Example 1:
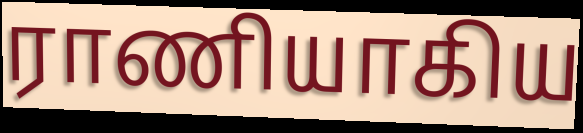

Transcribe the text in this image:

ராணியாகிய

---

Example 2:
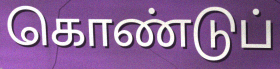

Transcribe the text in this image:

கொண்டுப்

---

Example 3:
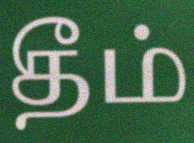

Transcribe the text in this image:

தீம்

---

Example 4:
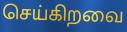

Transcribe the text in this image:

செய்கிறவை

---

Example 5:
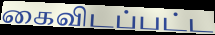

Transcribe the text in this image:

கைவிடப்பட்ட